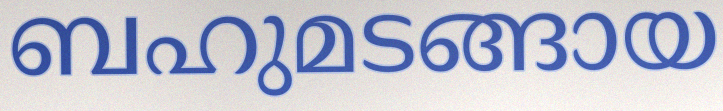
ബഹുമടങ്ങായ